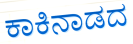
ಕಾಕಿನಾಡದ